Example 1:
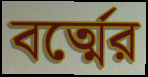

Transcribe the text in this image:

বর্ত্মের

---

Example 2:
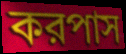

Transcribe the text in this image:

করপাস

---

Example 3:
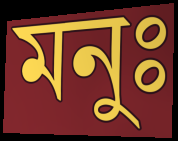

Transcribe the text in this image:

মনুঃ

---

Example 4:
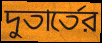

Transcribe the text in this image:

দুতার্তের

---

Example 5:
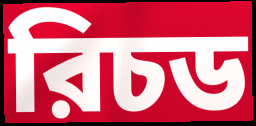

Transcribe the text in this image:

রিচড